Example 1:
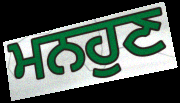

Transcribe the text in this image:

ਮਨਹੁਣ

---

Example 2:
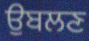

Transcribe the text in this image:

ਉਬਲਣ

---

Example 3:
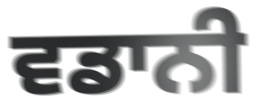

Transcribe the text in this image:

ਵਡਾਨੀ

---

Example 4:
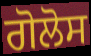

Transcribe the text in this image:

ਗੋਲੋਸ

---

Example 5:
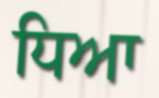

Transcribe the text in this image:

ਧਿਆ